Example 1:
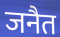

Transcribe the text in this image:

जनैत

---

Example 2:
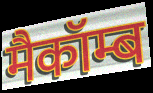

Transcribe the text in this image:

मैकॉम्ब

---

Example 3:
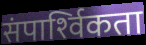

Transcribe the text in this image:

संपार्श्विकता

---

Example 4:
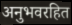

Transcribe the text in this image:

अनुभवरहित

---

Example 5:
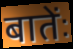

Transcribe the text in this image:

बातेंः